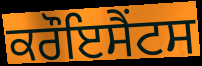
ਕਰੌਇਸੈਂਟਸ